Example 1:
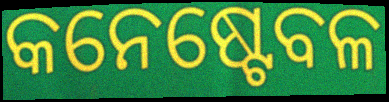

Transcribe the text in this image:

କନେଷ୍ଟେବଳ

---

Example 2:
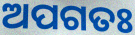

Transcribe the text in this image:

ଅପଗତଃ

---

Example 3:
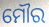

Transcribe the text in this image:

ମୌର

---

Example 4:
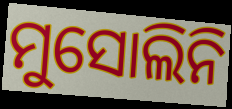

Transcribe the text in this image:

ମୁସୋଲିନି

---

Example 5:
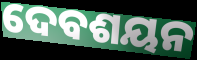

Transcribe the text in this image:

ଦେବଶୟନ